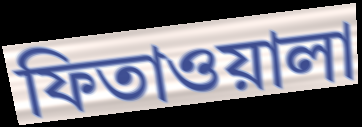
ফিতাওয়ালা